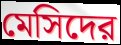
মেসিদের